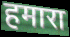
हमारा